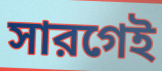
সারগেই